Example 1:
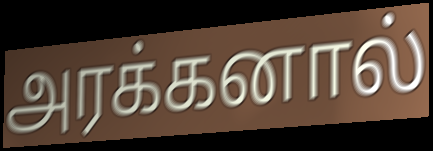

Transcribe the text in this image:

அரக்கனால்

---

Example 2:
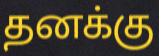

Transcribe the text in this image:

தனக்கு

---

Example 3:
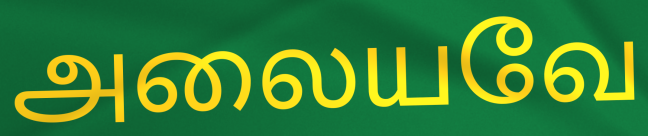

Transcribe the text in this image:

அலையவே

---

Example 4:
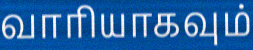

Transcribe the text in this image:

வாரியாகவும்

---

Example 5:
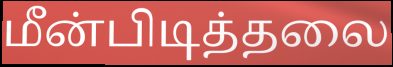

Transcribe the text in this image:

மீன்பிடித்தலை